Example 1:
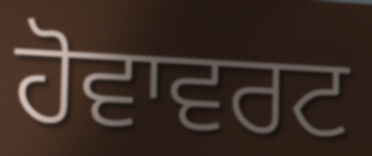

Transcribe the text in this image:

ਹੋਵਾਵਰਟ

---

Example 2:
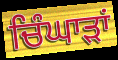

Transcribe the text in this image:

ਚਿੰਘਾੜਾਂ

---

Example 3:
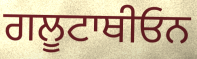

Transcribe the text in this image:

ਗਲੂਟਾਥੀਓਨ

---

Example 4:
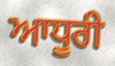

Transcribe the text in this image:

ਆਧੂਰੀ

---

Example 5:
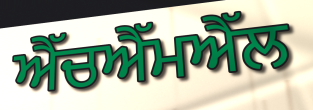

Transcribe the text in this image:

ਐੱਚਐੱਮਐੱਲ